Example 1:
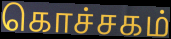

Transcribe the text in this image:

கொச்சகம்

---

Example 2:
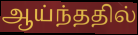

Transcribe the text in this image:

ஆய்ந்ததில்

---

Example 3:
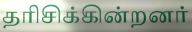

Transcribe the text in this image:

தரிசிக்கின்றனர்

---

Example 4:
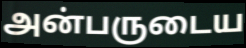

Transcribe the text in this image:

அன்பருடைய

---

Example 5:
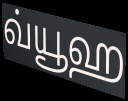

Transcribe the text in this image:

வ்யூஹ